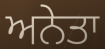
ਅਨੇਤਾ